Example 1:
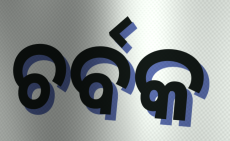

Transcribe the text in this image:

ଚର୍ବକ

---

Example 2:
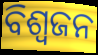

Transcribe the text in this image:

ବିଶ୍ଵଜନ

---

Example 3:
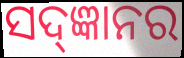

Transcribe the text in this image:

ସଦ୍‌ଜ୍ଞାନର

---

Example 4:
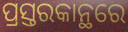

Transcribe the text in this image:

ପ୍ରସ୍ତରକାନ୍ଥରେ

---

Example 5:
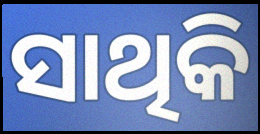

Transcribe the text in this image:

ସାଥିକି